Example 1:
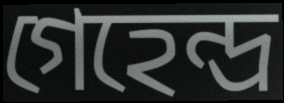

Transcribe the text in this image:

গেহেন্দ্র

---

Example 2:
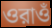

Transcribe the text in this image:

ওরাওঁ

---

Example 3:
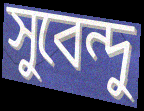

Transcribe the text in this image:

সুবেন্দু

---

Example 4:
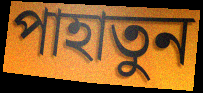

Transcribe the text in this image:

পাহাতুন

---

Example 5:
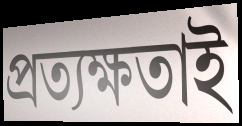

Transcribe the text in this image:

প্রত্যক্ষতাই